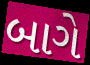
બાગે